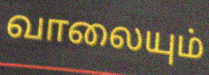
வாலையும்